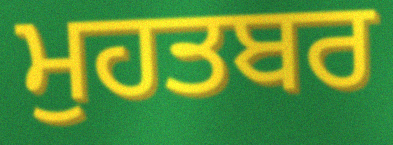
ਮੁਹਤਬਰ